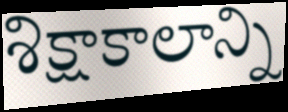
శిక్షాకాలాన్ని